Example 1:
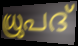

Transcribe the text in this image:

ധ്രുപദ്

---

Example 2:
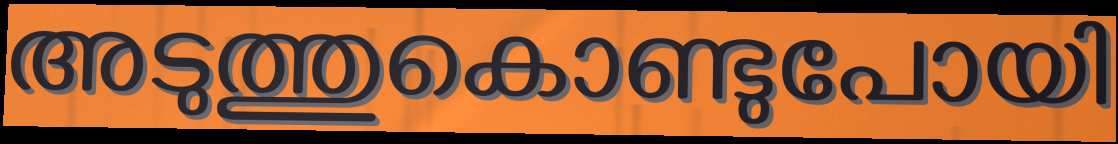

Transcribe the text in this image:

അടുത്തുകൊണ്ടുപോയി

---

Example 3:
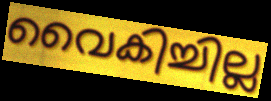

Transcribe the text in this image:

വൈകിച്ചില്ല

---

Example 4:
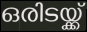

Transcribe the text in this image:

ഒരിടയ്ക്ക്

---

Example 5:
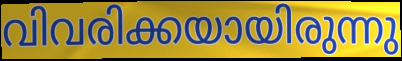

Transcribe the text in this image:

വിവരിക്കയായിരുന്നു